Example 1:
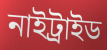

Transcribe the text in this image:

নাইট্রাইড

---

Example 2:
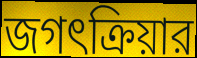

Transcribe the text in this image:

জগৎক্রিয়ার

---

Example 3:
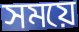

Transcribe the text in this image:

সময়ে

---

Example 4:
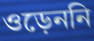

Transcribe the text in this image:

ওড়েননি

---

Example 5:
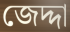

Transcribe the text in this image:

জেদ্দা